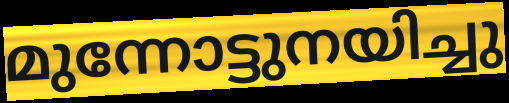
മുന്നോട്ടുനയിച്ചു